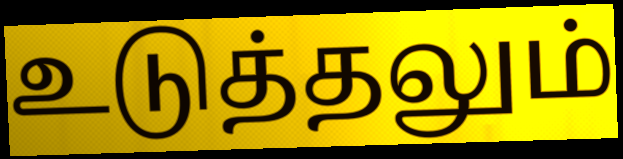
உடுத்தலும்